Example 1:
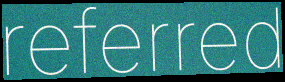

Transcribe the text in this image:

referred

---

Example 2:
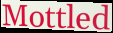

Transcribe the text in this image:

Mottled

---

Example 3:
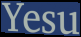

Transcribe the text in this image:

Yesu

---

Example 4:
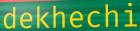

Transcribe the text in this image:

dekhechi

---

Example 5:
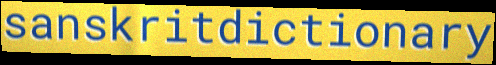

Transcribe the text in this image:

sanskritdictionary